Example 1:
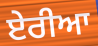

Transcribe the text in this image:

ਏਰੀਆ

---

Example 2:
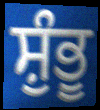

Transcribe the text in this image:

ਸ਼ੁੰਭੂ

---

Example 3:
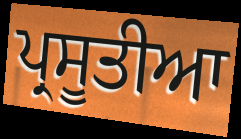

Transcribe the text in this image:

ਪ੍ਰਸੂਤੀਆ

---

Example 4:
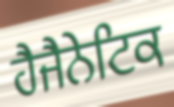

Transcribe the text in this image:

ਹੈਜੈਨੇਟਿਕ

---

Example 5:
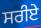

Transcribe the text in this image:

ਸਰੀਏ